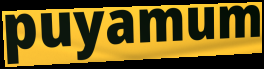
puyamum